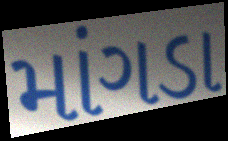
માંગડા